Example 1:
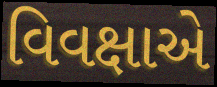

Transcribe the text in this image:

વિવક્ષાએ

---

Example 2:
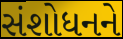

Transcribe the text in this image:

સંશોધનને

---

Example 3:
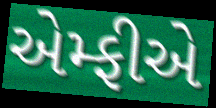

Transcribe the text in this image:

એમ્ફીએ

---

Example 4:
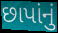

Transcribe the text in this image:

છાપાંનું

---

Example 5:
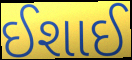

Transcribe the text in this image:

ઈશાઈ